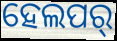
ହେଲପର୍